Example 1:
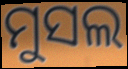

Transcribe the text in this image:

ମୁସଲ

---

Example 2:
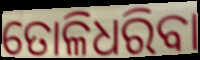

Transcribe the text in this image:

ତୋଳିଧରିବା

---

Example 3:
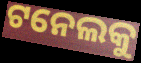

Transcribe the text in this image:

ଟନେଲକୁ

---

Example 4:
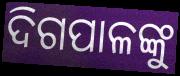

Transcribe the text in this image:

ଦିଗପାଳଙ୍କୁ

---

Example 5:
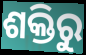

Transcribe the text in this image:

ଶକ୍ତିରୁ